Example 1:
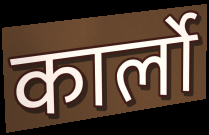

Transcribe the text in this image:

कार्लो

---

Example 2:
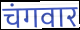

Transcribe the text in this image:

चंगवार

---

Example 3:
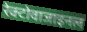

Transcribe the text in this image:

रेक्टोवाजाइनल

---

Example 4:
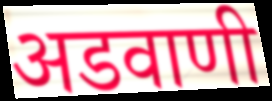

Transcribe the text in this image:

अडवाणी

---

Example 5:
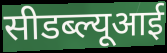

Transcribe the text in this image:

सीडब्ल्यूआई